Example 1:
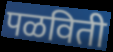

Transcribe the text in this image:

पळविती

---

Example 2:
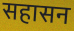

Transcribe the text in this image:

सहासन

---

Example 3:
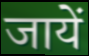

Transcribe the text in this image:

जायें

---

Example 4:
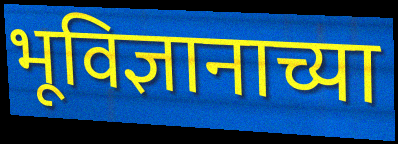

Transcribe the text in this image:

भूविज्ञानाच्या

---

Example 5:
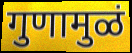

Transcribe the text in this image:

गुणामुळं